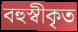
বহুস্বীকৃত